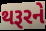
થરૂરને